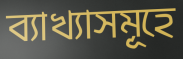
ব্যাখ্যাসমূহে